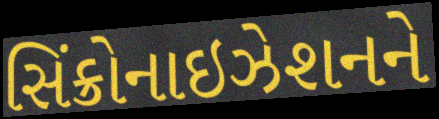
સિંક્રોનાઇઝેશનને